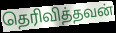
தெரிவித்தவன்